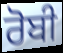
ਰੋਬੀ